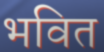
भवित